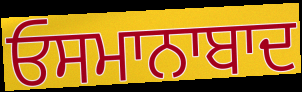
ਓਸਮਾਨਾਬਾਦ